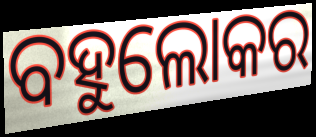
ବହୁଲୋକର